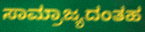
ಸಾಮ್ರಾಜ್ಯದಂತಹ